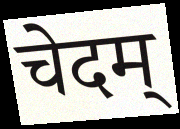
चेदम्